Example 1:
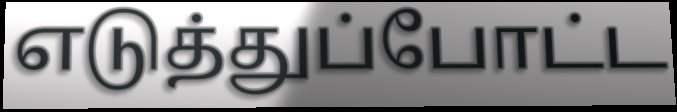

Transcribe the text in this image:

எடுத்துப்போட்ட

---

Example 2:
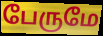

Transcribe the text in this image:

பேருமே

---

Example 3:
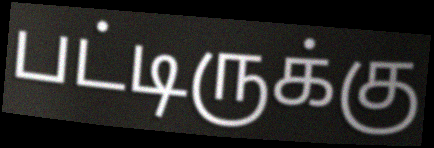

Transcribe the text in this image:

பட்டிருக்கு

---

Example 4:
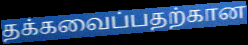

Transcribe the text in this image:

தக்கவைப்பதற்கான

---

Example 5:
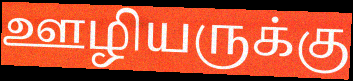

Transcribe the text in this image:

ஊழியருக்கு